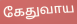
கேதுவாய